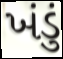
ખંડું